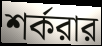
শর্করার